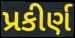
પ્રકીર્ણ